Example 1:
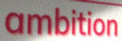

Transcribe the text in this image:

ambition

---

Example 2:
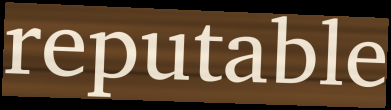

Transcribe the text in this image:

reputable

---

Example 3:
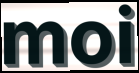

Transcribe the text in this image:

moi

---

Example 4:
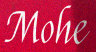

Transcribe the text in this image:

Mohe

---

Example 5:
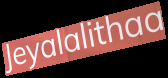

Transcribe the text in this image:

Jeyalalithaa